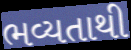
ભવ્યતાથી